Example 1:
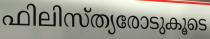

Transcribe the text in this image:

ഫിലിസ്ത്യരോടുകൂടെ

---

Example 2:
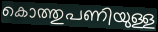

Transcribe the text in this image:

കൊത്തുപണിയുള്ള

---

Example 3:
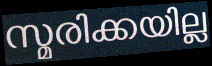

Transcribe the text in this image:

സ്മരിക്കയില്ല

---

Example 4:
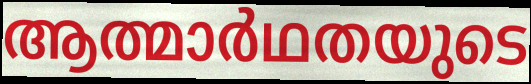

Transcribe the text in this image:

ആത്മാർഥതയുടെ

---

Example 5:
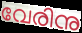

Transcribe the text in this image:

വേരിനു